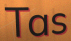
Tas